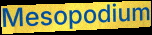
Mesopodium